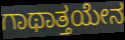
ಗಾಥಾತ್ತಯೇನ